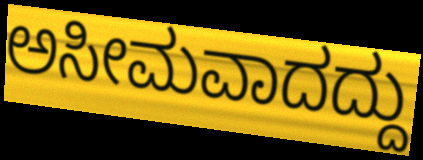
ಅಸೀಮವಾದದ್ದು